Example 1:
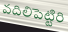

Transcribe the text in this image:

వదిలిపెట్టిరి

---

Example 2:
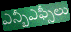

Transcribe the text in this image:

ఎన్బీఎఫ్సీలు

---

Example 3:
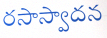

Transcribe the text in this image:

రసాస్వాదన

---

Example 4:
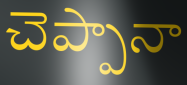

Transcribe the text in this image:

చెప్పానా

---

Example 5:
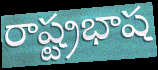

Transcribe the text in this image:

రాష్ట్రభాష